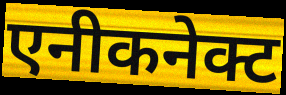
एनीकनेक्ट